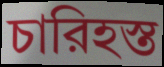
চারিহস্ত